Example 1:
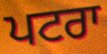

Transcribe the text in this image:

ਪਟਰਾ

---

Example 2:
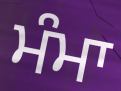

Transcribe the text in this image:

ਮੰਮਾ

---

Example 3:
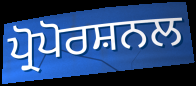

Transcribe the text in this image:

ਪ੍ਰੋਪੋਰਸ਼ਨਲ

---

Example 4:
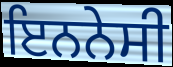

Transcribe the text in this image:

ਇਨਨੇਸੀ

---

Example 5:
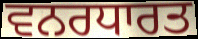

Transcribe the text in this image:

ਵਨਰਧਾਰਤ